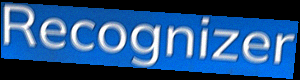
Recognizer